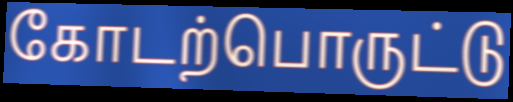
கோடற்பொருட்டு